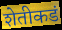
शेतीकडं